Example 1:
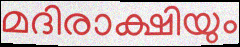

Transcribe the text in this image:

മദിരാക്ഷിയും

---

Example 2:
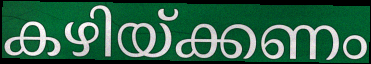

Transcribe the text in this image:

കഴിയ്ക്കണം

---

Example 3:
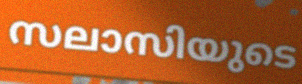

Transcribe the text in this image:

സലാസിയുടെ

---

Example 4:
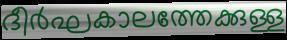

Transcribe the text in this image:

ദീർഘകാലത്തേക്കുള്ള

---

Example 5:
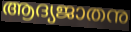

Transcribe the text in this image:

ആദ്യജാതനു